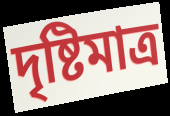
দৃষ্টিমাত্র